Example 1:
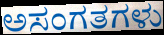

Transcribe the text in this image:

ಅಸಂಗತಗಳು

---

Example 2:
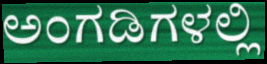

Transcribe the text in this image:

ಅಂಗಡಿಗಳಲ್ಲಿ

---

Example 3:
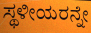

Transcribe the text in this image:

ಸ್ಥಳೀಯರನ್ನೇ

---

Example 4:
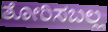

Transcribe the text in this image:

ತೋರಿಸಬಲ್ಲ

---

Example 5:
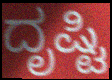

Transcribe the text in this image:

ದೃಷ್ಟಿ